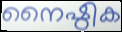
നൈഷ്ഠിക